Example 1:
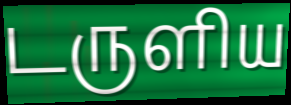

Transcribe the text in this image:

டருளிய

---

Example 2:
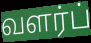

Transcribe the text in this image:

வளர்ப்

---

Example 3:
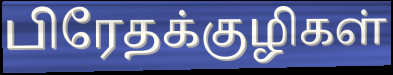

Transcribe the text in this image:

பிரேதக்குழிகள்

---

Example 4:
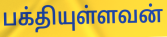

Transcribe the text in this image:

பக்தியுள்ளவன்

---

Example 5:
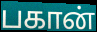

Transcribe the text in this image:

பகான்